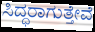
ಸಿದ್ಧರಾಗುತ್ತೇವೆ